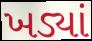
ખડ્યાં